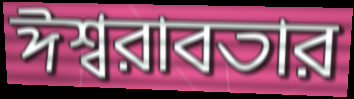
ঈশ্বরাবতার